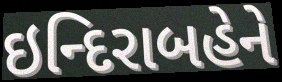
ઇન્દિરાબહેને